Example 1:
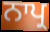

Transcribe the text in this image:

ਨਾਪ੍ਰ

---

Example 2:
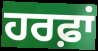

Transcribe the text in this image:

ਹਰਫ਼ਾਂ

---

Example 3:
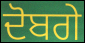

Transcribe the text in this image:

ਦੋਬਗੇ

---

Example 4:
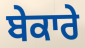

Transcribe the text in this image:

ਬੇਕਾਰੇ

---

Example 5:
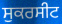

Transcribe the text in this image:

ਸੁਕਰਸੀਟ